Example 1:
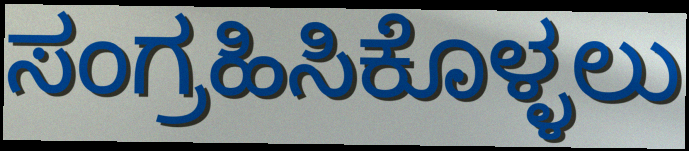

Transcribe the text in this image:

ಸಂಗ್ರಹಿಸಿಕೊಳ್ಳಲು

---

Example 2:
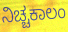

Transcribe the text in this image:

ನಿಚ್ಚಕಾಲಂ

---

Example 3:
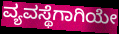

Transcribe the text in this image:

ವ್ಯವಸ್ಥೆಗಾಗಿಯೇ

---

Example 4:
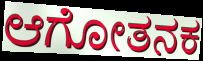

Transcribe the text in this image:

ಆಗೋತನಕ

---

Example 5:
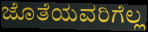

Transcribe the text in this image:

ಜೊತೆಯವರಿಗೆಲ್ಲ